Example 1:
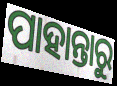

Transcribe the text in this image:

ପାହାନ୍ତାରୁ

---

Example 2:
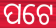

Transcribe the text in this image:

ପଟେ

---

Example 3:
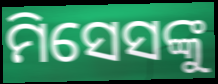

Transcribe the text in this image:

ମିସେସଙ୍କୁ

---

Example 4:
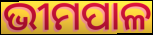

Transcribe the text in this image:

ଭୀମପାଳ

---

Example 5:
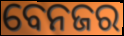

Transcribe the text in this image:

ବେନଜର